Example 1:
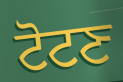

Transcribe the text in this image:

ਟੋਟਣ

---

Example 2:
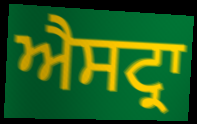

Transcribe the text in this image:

ਐਸਟ੍ਰਾ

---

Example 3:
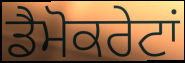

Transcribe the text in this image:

ਡੈਮੋਕਰੇਟਾਂ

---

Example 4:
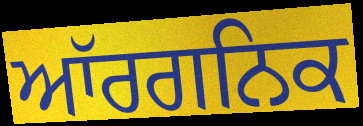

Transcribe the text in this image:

ਆੱਰਗਨਿਕ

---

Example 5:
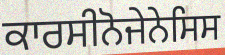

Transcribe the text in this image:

ਕਾਰਸੀਨੋਜੇਨੇਸਿਸ